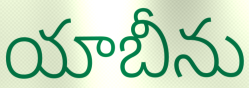
యాబీను